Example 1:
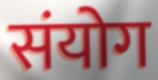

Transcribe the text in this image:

संयोग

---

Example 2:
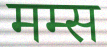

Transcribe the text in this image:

मम्स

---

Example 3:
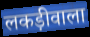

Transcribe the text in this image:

लकड़ीवाला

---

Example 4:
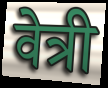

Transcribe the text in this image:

वेत्री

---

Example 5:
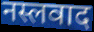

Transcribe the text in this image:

नस्लवाद